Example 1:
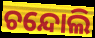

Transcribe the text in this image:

ଚନ୍ଦୋଲି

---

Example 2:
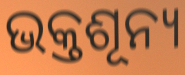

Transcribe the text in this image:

ଭକ୍ତଶୂନ୍ୟ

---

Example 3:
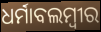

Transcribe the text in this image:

ଧର୍ମାବଲମ୍ବୀର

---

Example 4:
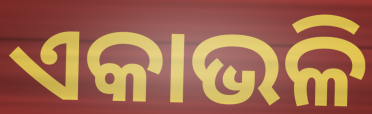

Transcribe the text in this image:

ଏକାଭଳି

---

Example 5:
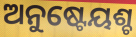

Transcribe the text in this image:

ଅନୁଷ୍ଟେୟଶ୍ଚ